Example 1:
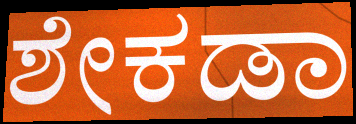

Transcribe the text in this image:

ಶೇಕಡಾ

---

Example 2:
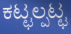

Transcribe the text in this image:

ಕಟ್ಟಲ್ಪಟ್ಟ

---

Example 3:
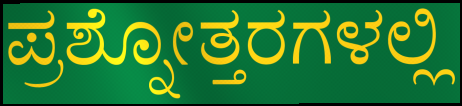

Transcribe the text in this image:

ಪ್ರಶ್ನೋತ್ತರಗಳಲ್ಲಿ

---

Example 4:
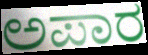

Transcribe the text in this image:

ಅಪಾರ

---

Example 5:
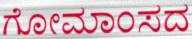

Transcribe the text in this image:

ಗೋಮಾಂಸದ